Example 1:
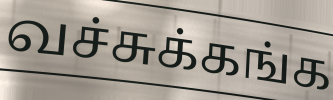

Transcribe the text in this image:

வச்சுக்கங்க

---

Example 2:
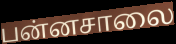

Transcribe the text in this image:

பன்னசாலை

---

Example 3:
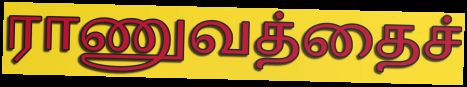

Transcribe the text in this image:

ராணுவத்தைச்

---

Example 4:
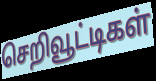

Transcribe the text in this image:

செறிவூட்டிகள்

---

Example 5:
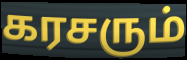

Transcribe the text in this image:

கரசரும்